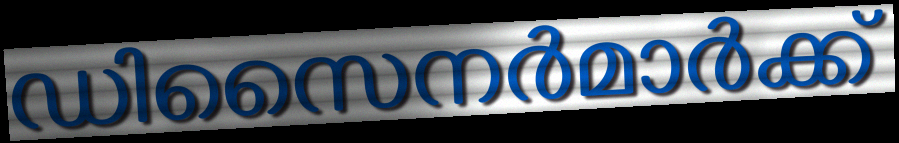
ഡിസൈനർമാർക്ക്